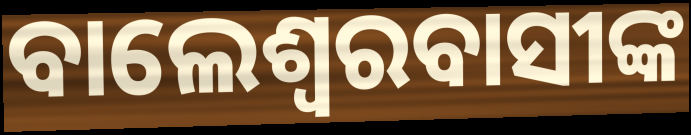
ବାଲେଶ୍ବରବାସୀଙ୍କ